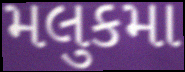
મલુકમા